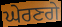
ਘੇਰਣਗੇ